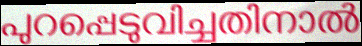
പുറപ്പെടുവിച്ചതിനാൽ